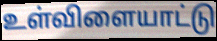
உள்விளையாட்டு